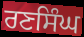
ਰਣਸਿੰਘ